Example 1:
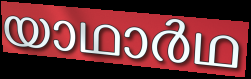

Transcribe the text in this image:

യാഥാർഥ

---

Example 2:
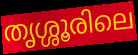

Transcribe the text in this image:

തൃശ്ശൂരിലെ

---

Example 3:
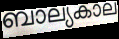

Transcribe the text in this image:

ബാല്യകാല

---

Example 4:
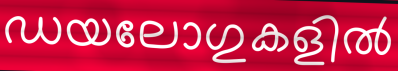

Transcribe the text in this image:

ഡയലോഗുകളിൽ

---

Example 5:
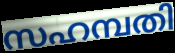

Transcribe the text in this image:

സഹമ്പതി